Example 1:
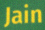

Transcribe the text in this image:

Jain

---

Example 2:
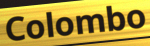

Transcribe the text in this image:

Colombo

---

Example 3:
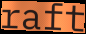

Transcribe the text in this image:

raft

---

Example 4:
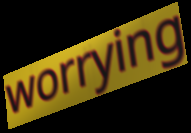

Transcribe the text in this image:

worrying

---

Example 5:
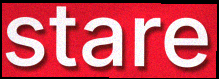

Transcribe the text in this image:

stare